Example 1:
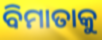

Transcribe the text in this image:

ବିମାତାକୁ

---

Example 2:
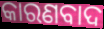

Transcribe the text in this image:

କାରଣବାଦ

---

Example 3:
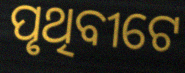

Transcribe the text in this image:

ପୃଥିବୀଟେ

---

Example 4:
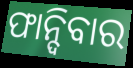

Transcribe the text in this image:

ଫାନ୍ଦିବାର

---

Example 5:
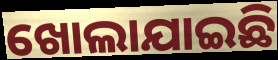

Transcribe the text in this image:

ଖୋଲାଯାଇଛି